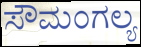
ಸೌಮಂಗಲ್ಯ